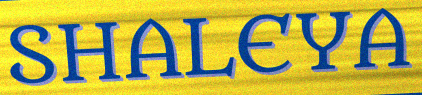
SHALEYA